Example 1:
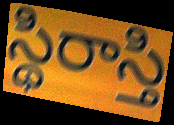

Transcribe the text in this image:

స్థిరాస్తి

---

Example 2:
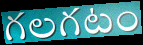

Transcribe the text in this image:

గలగటం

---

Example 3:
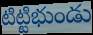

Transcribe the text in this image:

టిట్టిభుండు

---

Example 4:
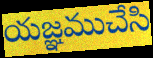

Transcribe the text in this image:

యజ్ఞముచేసి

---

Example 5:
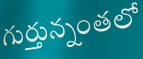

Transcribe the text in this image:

గుర్తున్నంతలో